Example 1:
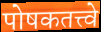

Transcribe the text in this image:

पोषकतत्त्वे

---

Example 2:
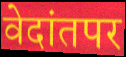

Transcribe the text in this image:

वेदांतपर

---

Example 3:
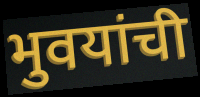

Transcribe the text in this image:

भुवयांची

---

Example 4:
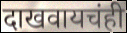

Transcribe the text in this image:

दाखवायचंही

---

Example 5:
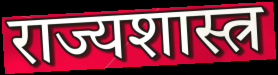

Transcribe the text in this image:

राज्यशास्त्र